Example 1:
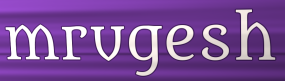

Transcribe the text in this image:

mrugesh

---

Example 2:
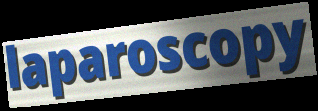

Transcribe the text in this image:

laparoscopy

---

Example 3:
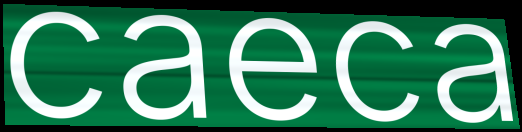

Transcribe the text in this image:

caeca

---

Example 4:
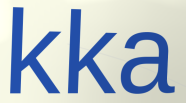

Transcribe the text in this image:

kka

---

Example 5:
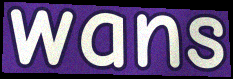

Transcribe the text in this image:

wans